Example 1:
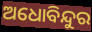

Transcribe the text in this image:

ଅଧୋବିନ୍ଦୁର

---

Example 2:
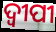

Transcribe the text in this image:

ଦ୍ଵୀପୀ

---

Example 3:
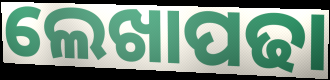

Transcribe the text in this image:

ଲେଖାପଢା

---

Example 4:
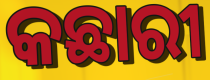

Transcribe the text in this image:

କଛାରୀ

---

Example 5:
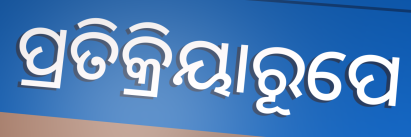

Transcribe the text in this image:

ପ୍ରତିକ୍ରିୟାରୂପେ